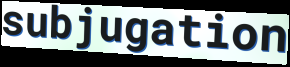
subjugation